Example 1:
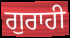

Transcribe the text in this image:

ਗੁਰਾਹੀ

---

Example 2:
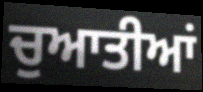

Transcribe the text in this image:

ਚੁਆਤੀਆਂ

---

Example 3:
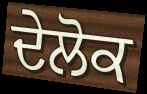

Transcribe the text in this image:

ਦੇਲੋਕ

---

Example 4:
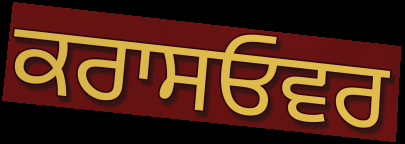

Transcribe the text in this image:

ਕਰਾਸਓਵਰ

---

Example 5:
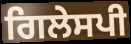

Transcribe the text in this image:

ਗਿਲੇਸਪੀ